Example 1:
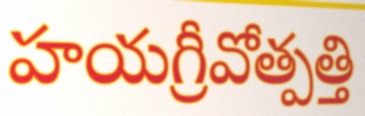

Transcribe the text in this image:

హయగ్రీవోత్పత్తి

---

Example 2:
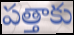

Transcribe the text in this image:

పత్తాకు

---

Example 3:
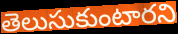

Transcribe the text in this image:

తెలుసుకుంటారని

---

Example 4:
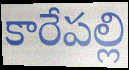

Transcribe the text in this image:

కారేపల్లి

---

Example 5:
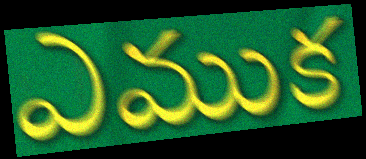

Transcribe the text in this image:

ఎముక